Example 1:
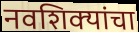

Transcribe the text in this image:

नवशिक्यांचा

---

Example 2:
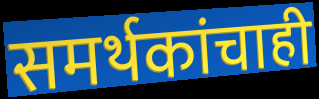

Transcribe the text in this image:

समर्थकांचाही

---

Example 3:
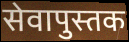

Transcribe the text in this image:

सेवापुस्तक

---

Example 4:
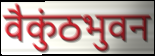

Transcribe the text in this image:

वैकुंठभुवन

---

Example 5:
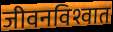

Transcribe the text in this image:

जीवनविश्वात